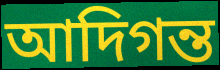
আদিগন্ত